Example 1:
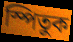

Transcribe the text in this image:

স্পিতুক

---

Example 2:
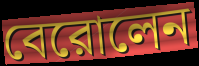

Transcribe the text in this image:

বেরোলেন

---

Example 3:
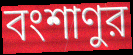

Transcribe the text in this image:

বংশাণুর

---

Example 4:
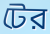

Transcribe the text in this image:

টের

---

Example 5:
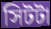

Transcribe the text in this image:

সিটটা